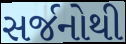
સર્જનોથી